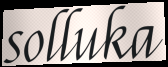
solluka